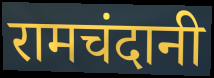
रामचंदानी